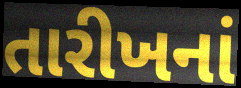
તારીખનાં